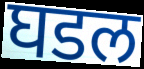
घडल